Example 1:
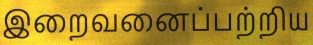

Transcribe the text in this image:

இறைவனைப்பற்றிய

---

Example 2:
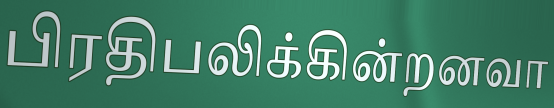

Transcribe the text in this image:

பிரதிபலிக்கின்றனவா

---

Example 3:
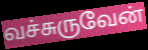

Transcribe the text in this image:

வச்சுருவேன்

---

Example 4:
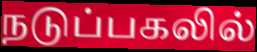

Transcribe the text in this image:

நடுப்பகலில்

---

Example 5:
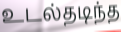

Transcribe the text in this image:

உடல்தடிந்த